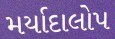
મર્યાદાલોપ